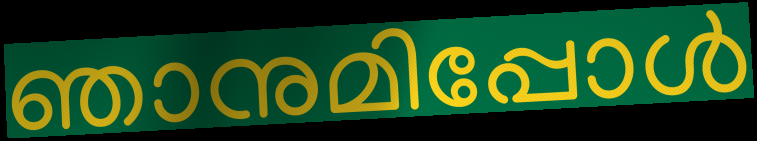
ഞാനുമിപ്പോൾ